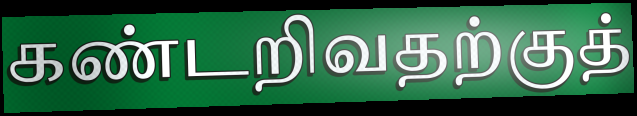
கண்டறிவதற்குத்